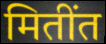
मितींत